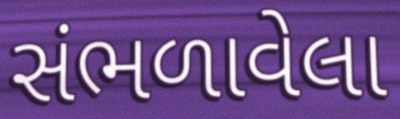
સંભળાવેલા